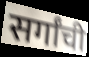
सर्गांची